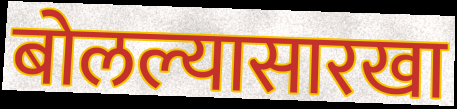
बोलल्यासारखा